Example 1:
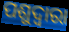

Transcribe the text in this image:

ପଶୁଦ୍ୱାରା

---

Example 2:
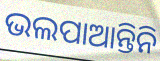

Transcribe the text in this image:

ଭଲପାଆନ୍ତିନି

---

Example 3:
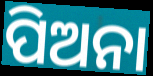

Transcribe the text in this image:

ପିଅନା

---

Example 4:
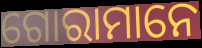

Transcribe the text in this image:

ଗୋରାମାନେ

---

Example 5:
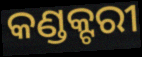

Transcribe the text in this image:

କଣ୍ଡକ୍ଟରୀ